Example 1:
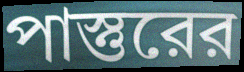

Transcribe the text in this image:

পাস্তুরের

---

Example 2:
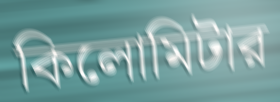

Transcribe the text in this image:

কিলোমিটার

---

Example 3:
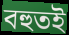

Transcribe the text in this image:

বহুতই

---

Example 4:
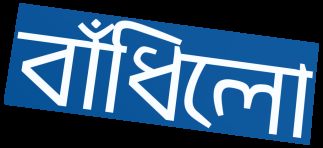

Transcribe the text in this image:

বাঁধিলো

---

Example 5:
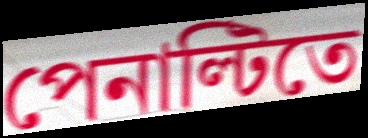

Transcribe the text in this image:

পেনাল্টিতে